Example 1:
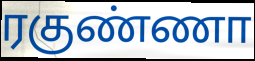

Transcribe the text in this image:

ரகுண்ணா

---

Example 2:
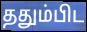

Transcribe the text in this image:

ததும்பிட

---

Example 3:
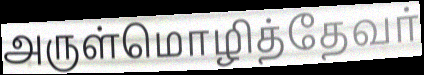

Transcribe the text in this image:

அருள்மொழித்தேவர்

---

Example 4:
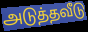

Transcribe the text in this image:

அடுத்தவீடு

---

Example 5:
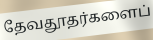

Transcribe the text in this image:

தேவதூதர்களைப்